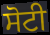
ਸੋਟੀ